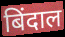
बिंदाल